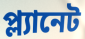
প্ল্যানেট